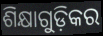
ଶିକ୍ଷାଗୁଡ଼ିକର